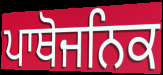
ਪਾਥੋਜਨਿਕ